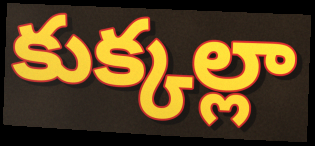
కుక్కల్లా